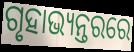
ଗୃହାଭ୍ୟନ୍ତରରେ